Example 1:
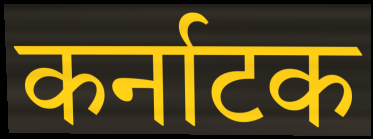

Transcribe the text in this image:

कर्नाटक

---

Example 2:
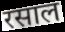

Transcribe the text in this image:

रसाल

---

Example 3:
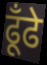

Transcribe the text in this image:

ढूँढे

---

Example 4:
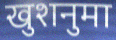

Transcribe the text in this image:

खुशनुमा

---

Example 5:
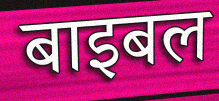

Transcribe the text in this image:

बाइबल